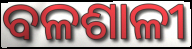
ବଳଶାଳୀ